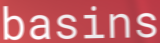
basins